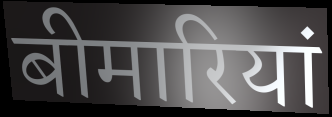
बीमारियां